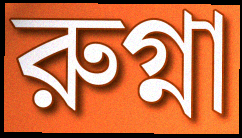
রুগ্না